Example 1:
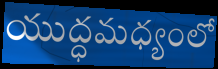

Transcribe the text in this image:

యుద్ధమధ్యంలో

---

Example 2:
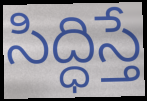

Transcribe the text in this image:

సిద్ధిస్తే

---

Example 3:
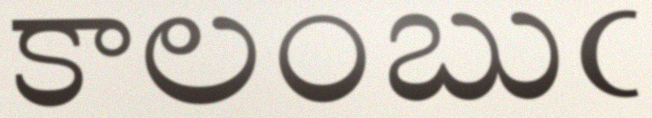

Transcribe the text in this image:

కాలంబుఁ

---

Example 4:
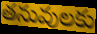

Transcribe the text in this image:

తనువులకు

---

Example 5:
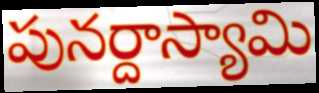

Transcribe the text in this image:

పునర్దాస్యామి